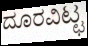
ದೂರವಿಟ್ಟ